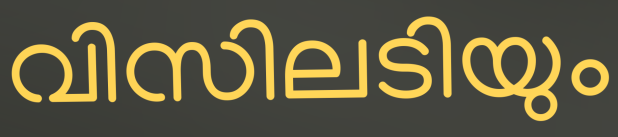
വിസിലടിയും